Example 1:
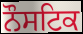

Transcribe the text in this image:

ਨੌਸਟਿਕ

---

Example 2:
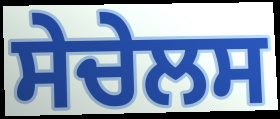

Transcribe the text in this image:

ਸੇਚੇਲਸ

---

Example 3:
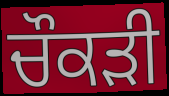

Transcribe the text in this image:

ਚੌਕੜੀ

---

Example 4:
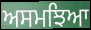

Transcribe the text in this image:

ਅਸਮਝਿਆ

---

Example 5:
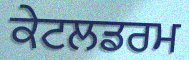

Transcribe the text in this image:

ਕੇਟਲਡਰਮ